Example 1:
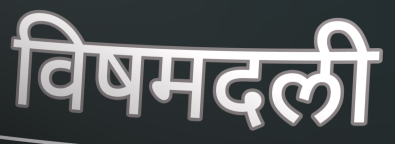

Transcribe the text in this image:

विषमदली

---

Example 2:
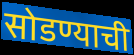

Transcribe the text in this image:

सोडण्याची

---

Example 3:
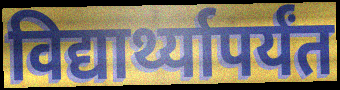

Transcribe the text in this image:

विद्यार्थ्यापर्यंत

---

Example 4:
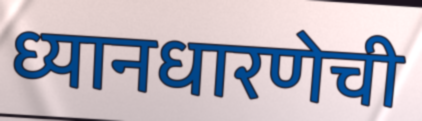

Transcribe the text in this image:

ध्यानधारणेची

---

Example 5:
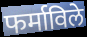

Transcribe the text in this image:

फर्माविले